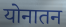
योनातन